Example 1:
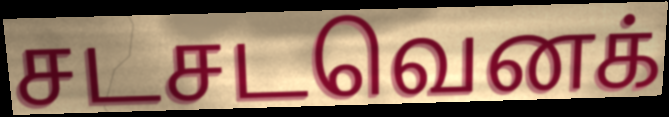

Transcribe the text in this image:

சடசடவெனக்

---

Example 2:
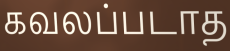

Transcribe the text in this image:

கவலப்படாத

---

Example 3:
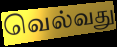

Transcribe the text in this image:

வெல்வது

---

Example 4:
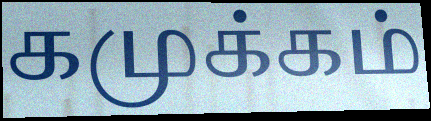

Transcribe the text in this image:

கமுக்கம்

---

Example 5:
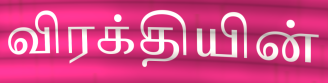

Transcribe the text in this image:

விரக்தியின்